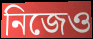
নিজেও